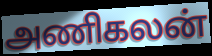
அணிகலன்